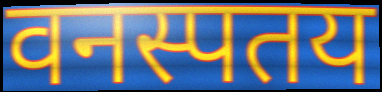
वनस्पतय